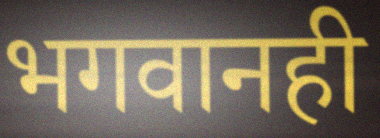
भगवानही